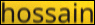
hossain